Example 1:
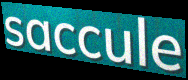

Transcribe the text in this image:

saccule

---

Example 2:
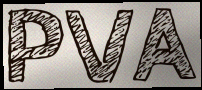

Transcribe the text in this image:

PVA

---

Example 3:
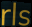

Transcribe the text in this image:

rls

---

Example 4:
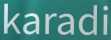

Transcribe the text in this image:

karadi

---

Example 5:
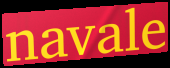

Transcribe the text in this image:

navale